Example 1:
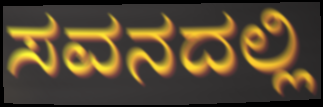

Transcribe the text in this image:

ಸವನದಲ್ಲಿ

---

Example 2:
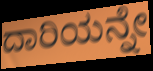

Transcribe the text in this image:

ದಾರಿಯನ್ನೇ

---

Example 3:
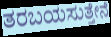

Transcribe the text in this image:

ತರಬಯಸುತ್ತೇನೆ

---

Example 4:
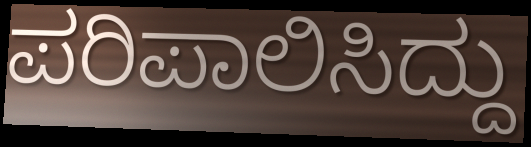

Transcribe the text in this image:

ಪರಿಪಾಲಿಸಿದ್ದು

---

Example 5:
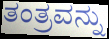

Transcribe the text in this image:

ತಂತ್ರವನ್ನು